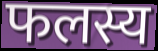
फलस्य